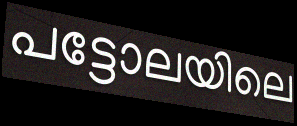
പട്ടോലയിലെ